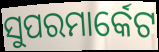
ସୁପରମାର୍କେଟ